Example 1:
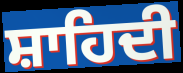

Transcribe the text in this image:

ਸ਼ਾਹਿਦੀ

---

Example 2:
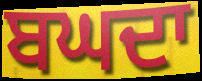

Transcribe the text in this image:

ਬਘਦਾ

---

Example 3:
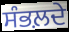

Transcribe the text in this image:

ਸੰਭਲ਼ਦੇ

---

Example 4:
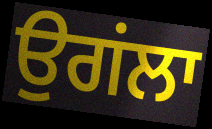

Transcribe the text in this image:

ਉਗਂਲਾ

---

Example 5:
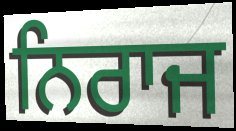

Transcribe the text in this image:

ਨਿਰਾਜ